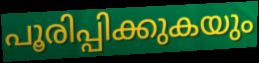
പൂരിപ്പിക്കുകയും